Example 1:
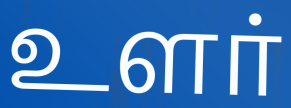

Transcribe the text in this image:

உளர்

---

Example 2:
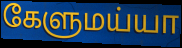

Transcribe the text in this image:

கேளுமய்யா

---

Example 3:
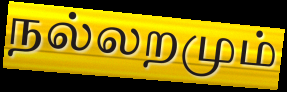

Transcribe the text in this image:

நல்லறமும்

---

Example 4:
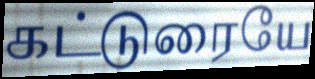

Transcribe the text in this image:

கட்டுரையே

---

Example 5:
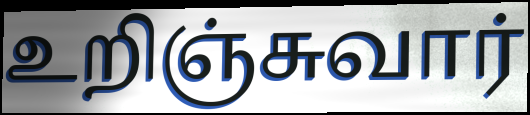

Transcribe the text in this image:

உறிஞ்சுவார்